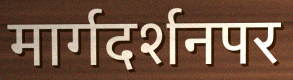
मार्गदर्शनपर